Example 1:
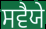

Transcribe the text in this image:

ਸਵੈਯੇ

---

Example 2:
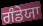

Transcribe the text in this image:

ਗੰਡੇਯਾ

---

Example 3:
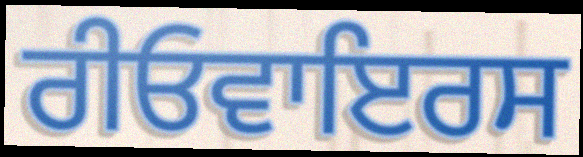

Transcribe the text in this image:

ਰੀਓਵਾਇਰਸ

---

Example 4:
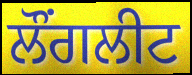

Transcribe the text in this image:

ਲੌਂਗਲੀਟ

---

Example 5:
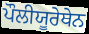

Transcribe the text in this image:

ਪੌਲੀਯੂਰੇਥੇਨ